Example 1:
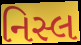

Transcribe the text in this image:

નિસ્લ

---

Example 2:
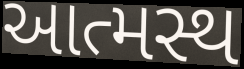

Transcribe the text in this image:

આત્મસ્થ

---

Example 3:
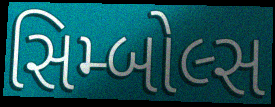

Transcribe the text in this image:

સિમ્બોલ્સ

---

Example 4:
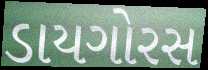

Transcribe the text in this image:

ડાયગોરસ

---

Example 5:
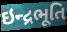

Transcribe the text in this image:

ઇન્દ્રભૂતિ